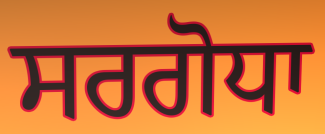
ਸਰਗੋਧਾ